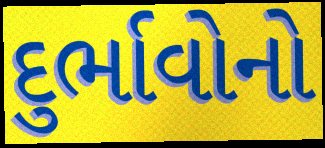
દુર્ભાવોનો